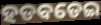
ହଡବଡେଇ